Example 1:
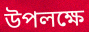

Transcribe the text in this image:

উপলক্ষে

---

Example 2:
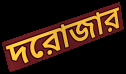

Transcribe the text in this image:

দরোজার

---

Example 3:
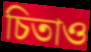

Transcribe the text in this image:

চিতাও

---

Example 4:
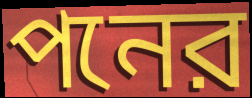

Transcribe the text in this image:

পনের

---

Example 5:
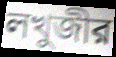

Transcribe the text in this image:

লখুজীর